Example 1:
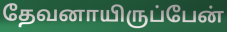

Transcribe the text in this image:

தேவனாயிருப்பேன்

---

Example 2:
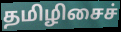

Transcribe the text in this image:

தமிழிசைச்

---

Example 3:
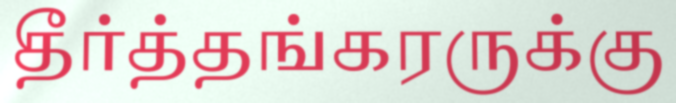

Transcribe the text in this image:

தீர்த்தங்கரருக்கு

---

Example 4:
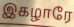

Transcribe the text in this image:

இகழாரே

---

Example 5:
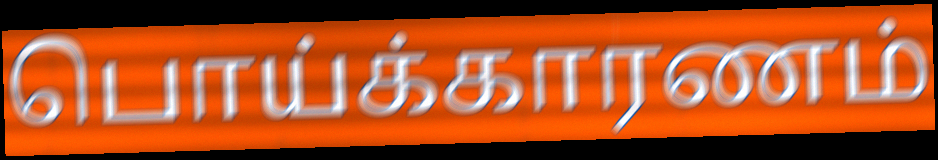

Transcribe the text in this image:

பொய்க்காரணம்